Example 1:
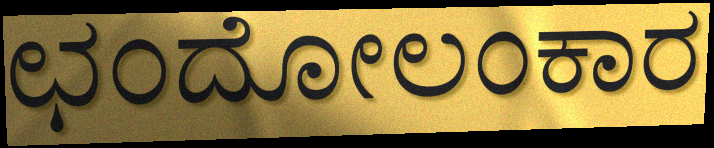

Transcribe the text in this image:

ಛಂದೋಲಂಕಾರ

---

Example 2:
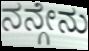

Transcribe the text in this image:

ನನ್ಗೇನು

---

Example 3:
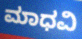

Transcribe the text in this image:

ಮಾಧವಿ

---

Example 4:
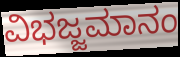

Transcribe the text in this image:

ವಿಭಜ್ಜಮಾನಂ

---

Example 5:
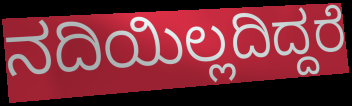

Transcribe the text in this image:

ನದಿಯಿಲ್ಲದಿದ್ದರೆ